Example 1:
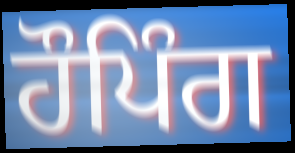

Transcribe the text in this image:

ਹੌਪਿੰਗ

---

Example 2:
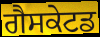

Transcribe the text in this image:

ਗੈਸਕੇਟਡ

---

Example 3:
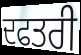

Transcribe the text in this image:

ਦਫਤਰੀ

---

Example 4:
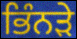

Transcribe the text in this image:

ਭਿੰਨੜੇ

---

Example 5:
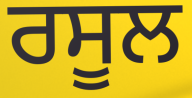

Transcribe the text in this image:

ਰਸੂਲ